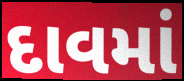
દાવમાં